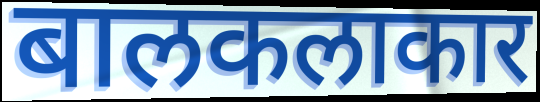
बालकलाकार